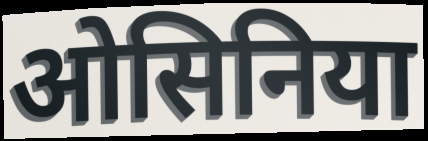
ओसिनिया